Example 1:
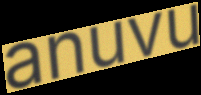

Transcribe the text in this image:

anuvu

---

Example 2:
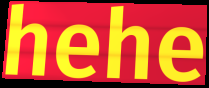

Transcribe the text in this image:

hehe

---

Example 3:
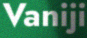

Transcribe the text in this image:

Vaniji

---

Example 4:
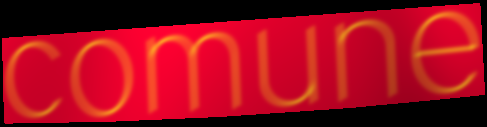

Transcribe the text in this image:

comune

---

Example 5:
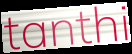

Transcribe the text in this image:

tanthi